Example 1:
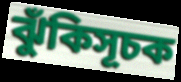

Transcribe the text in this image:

ঝুঁকিসূচক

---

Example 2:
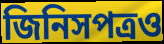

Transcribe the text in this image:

জিনিসপত্রও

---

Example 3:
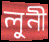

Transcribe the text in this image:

লুনী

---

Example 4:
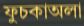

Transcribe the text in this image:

ফুচকাঅলা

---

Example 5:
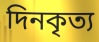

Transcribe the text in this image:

দিনকৃত্য